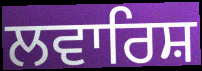
ਲਵਾਰਿਸ਼